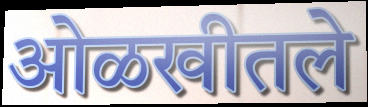
ओळखीतले